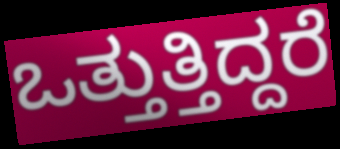
ಒತ್ತುತ್ತಿದ್ದರೆ